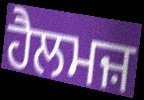
ਹੈਲਮਜ਼